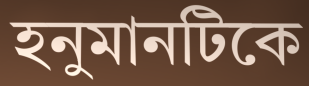
হনুমানটিকে